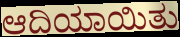
ಆದಿಯಾಯಿತು